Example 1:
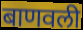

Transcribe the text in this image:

बाणवली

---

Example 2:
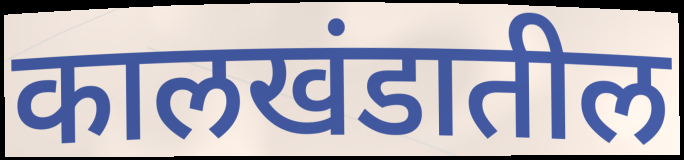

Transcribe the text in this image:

कालखंडातील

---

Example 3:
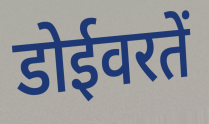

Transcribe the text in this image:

डोईवरतें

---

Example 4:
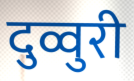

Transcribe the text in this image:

दुव्वुरी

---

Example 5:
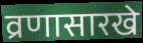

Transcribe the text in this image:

व्रणासारखे